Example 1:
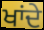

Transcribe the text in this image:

ਖਾਂਦੇ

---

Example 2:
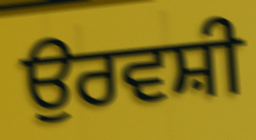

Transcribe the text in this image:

ਉਰਵਸ਼ੀ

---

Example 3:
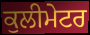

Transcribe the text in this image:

ਕੁਲੀਮੇਟਰ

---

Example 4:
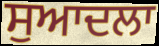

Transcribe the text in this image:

ਸੁਆਦਲਾ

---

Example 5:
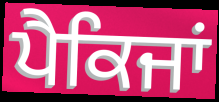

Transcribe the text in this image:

ਪੈਕਿਜਾਂ